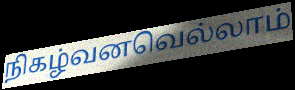
நிகழ்வனவெல்லாம்